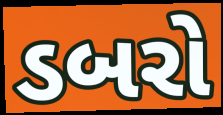
ડબરો